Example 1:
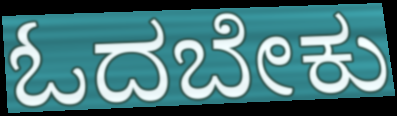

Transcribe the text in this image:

ಓದಬೇಕು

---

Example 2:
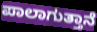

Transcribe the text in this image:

ಪಾಲಾಗುತ್ತಾನೆ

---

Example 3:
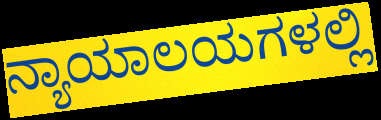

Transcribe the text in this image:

ನ್ಯಾಯಾಲಯಗಳಲ್ಲಿ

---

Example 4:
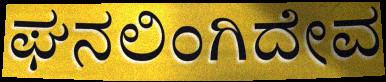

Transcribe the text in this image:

ಘನಲಿಂಗಿದೇವ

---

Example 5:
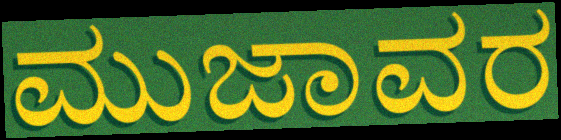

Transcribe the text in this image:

ಮುಜಾವರ